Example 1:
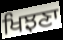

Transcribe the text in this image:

ਖਿਝਣਾ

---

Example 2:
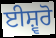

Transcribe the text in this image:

ਈਸ਼੍ਵਰੋ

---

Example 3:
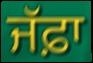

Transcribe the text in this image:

ਜੱਫ਼ਾ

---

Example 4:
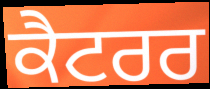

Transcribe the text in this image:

ਕੈਟਰਰ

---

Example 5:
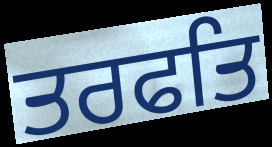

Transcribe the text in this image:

ਤਰਫਤਿ